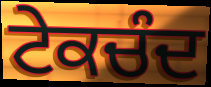
ਟੇਕਚੰਦ